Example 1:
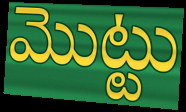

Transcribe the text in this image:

మొట్టు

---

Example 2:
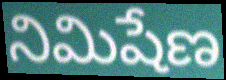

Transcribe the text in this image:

నిమిషేణ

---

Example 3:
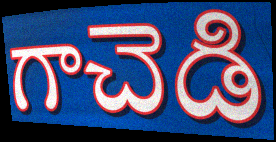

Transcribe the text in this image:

గాచెడి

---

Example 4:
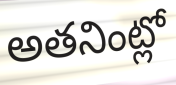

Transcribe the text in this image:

అతనింట్లో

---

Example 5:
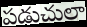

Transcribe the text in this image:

పడుచులా